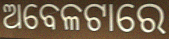
ଅବେଳଟାରେ